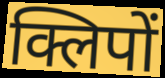
क्लिपों